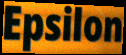
Epsilon